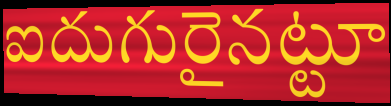
ఐదుగురైనట్టూ